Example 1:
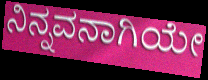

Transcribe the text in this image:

ನಿನ್ನವನಾಗಿಯೇ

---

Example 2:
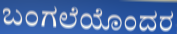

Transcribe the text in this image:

ಬಂಗಲೆಯೊಂದರ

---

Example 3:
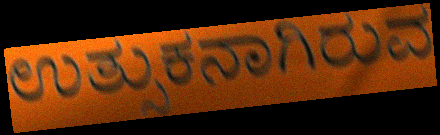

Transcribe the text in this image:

ಉತ್ಸುಕನಾಗಿರುವ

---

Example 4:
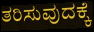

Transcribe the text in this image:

ತರಿಸುವುದಕ್ಕೆ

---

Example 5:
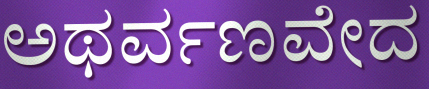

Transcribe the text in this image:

ಅಥರ್ವಣವೇದ